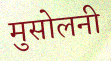
मुसोलनी